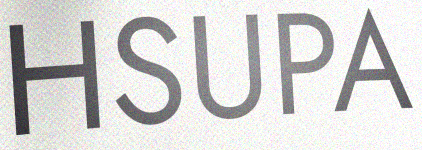
HSUPA